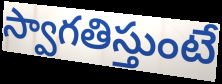
స్వాగతిస్తుంటే